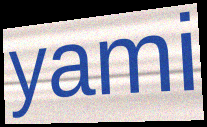
yami